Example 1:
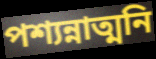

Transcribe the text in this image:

পশ্যন্নাত্মনি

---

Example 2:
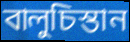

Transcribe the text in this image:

বালুচিস্তান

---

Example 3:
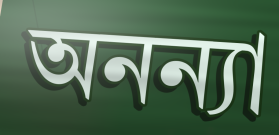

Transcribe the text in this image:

অনন্যা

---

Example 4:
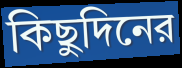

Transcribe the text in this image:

কিছুদিনের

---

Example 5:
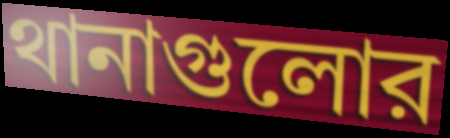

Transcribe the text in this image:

থানাগুলোর